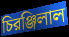
চিরঞ্জিলাল